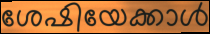
ശേഷിയേക്കാൾ